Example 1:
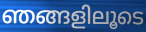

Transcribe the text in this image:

ഞങ്ങളിലൂടെ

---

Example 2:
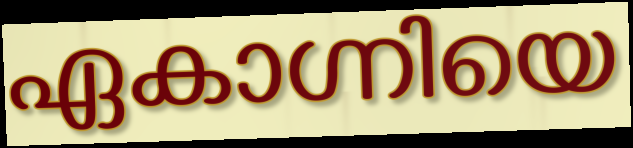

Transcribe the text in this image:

ഏകാഗ്നിയെ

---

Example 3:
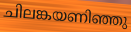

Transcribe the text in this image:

ചിലങ്കയണിഞ്ഞു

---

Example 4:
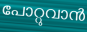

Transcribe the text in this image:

പോറ്റുവാൻ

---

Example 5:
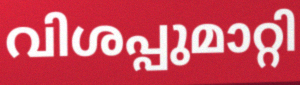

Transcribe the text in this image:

വിശപ്പുമാറ്റി